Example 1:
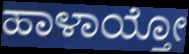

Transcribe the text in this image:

ಹಾಳಾಯ್ತೋ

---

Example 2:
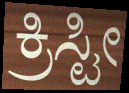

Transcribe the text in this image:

ಕ್ರಿಸ್ಟೀ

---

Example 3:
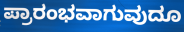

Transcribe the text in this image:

ಪ್ರಾರಂಭವಾಗುವುದೂ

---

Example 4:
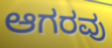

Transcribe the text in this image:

ಆಗರವು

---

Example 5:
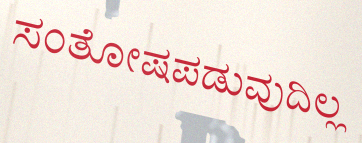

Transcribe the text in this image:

ಸಂತೋಷಪಡುವುದಿಲ್ಲ